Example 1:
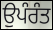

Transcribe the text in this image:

ਉਪੰਰੰਤ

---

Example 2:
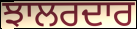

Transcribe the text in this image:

ਝਾਲਰਦਾਰ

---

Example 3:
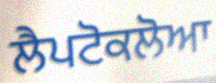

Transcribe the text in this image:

ਲੈਪਟੋਕਲੋਆ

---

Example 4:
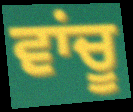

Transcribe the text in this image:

ਵਾਂਚੂ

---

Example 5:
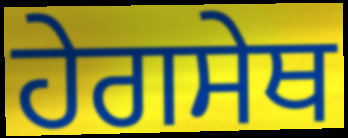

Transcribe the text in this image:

ਹੇਗਸੇਥ